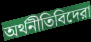
অর্থনীতিবিদেরা